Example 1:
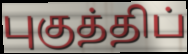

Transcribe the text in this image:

புகுத்திப்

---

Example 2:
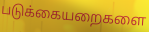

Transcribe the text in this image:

படுக்கையறைகளை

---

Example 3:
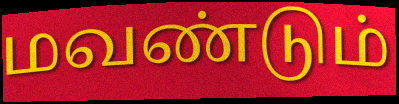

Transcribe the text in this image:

மவண்டும்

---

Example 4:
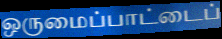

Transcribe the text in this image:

ஒருமைப்பாட்டைப்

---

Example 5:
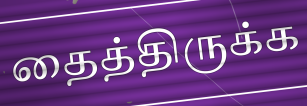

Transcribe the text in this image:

தைத்திருக்க